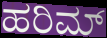
ಹರಿಮ್